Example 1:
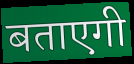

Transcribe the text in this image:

बताएगी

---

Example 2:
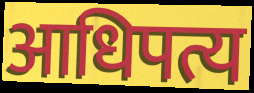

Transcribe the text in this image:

आधिपत्य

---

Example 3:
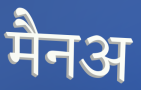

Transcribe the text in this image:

मैनअ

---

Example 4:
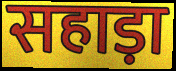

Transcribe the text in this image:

सहाड़ा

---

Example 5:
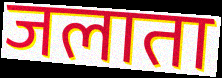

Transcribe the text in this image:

जलाता